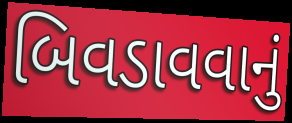
બિવડાવવાનું